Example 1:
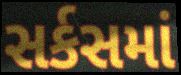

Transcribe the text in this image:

સર્કસમાં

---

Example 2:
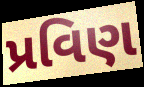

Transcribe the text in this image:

પ્રવિણ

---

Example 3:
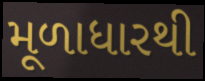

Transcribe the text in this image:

મૂળાધારથી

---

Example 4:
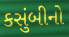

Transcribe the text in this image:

કસુંબીનો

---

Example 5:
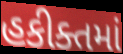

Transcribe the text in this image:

હકીક્તમાં